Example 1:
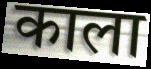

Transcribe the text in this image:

काला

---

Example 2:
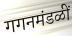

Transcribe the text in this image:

गगनमंडळीं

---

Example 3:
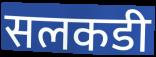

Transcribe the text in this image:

सलकडी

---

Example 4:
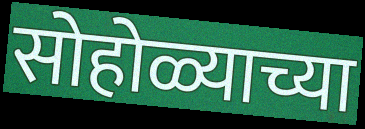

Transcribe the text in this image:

सोहोळ्याच्या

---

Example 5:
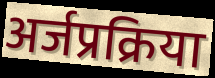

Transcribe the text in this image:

अर्जप्रक्रिया